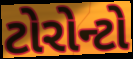
ટોરોન્ટો